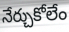
నేర్చుకోలేం